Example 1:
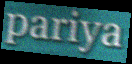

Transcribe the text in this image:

pariya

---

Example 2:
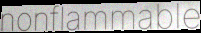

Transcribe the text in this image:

nonflammable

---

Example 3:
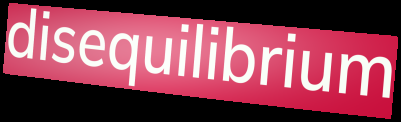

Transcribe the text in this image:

disequilibrium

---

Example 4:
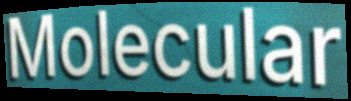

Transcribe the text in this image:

Molecular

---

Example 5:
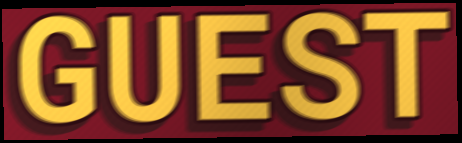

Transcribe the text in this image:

GUEST